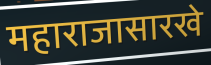
महाराजासारखे